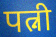
पत्नी